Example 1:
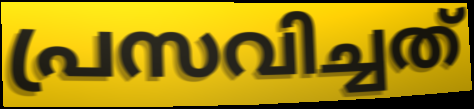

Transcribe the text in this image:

പ്രസവിച്ചത്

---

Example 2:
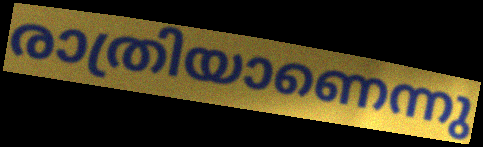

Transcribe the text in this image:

രാത്രിയാണെന്നു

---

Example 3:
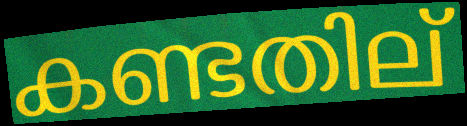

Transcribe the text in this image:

കണ്ടതില്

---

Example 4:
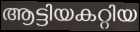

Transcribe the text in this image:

ആട്ടിയകറ്റിയ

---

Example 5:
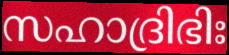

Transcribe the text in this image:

സഹാദ്രിഭിഃ